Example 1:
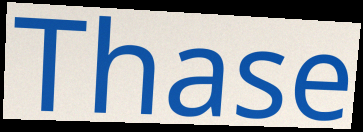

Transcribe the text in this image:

Thase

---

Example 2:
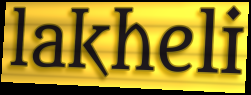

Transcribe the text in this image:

lakheli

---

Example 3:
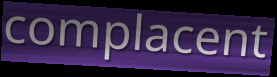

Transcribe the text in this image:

complacent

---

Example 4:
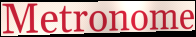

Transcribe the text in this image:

Metronome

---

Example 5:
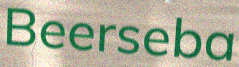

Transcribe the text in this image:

Beerseba